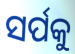
ସର୍ପକୁ